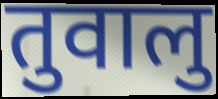
तुवालु